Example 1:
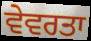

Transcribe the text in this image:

ਵੇਵਰਤਾ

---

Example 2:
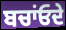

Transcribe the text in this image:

ਬਚਾਂਓਦੇ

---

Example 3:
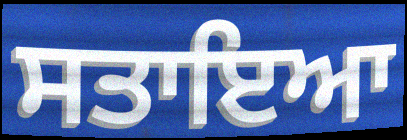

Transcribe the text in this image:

ਸਤਾਇਆ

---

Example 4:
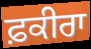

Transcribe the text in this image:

ਫ਼ਕੀਰਾ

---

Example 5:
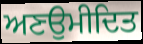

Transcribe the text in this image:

ਅਣਉਮੀਦਿਤ